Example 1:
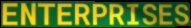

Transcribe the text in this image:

ENTERPRISES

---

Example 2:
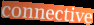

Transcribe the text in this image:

connective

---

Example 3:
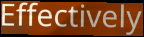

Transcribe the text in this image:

Effectively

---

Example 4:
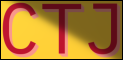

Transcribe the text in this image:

CTJ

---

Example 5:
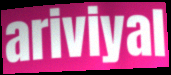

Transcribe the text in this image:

ariviyal